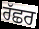
ਰੱਛਰ